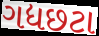
ગદ્યછટા